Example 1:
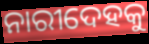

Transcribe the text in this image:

ନାରୀଦେହକୁ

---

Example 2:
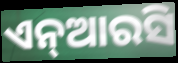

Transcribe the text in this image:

ଏନ୍ଆରସି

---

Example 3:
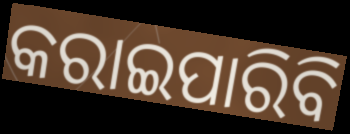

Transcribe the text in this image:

କରାଇପାରିବି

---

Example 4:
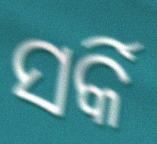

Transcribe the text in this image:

ସର୍କି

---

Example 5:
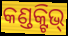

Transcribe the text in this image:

କଣ୍ଡକ୍ଟିଭ୍